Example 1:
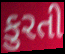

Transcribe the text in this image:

કુરતી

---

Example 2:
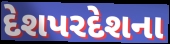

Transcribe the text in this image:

દેશપરદેશના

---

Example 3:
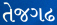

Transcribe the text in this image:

તેજગઢ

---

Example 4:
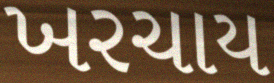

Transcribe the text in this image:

ખરચાય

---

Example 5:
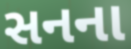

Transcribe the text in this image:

સનના